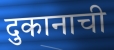
दुकानाची